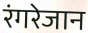
रंगरेजान